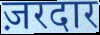
ज़रदार